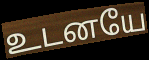
உடனயே